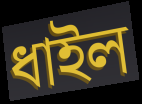
ধাইল